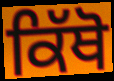
ਕਿੱਥੋ